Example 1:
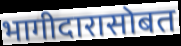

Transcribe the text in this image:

भागीदारासोबत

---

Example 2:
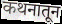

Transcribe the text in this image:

कथनातून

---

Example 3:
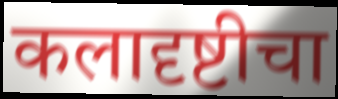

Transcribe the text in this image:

कलादृष्टीचा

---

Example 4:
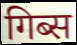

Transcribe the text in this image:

गिब्स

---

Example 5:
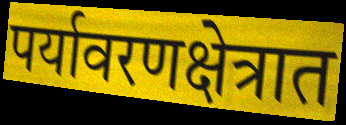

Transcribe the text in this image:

पर्यावरणक्षेत्रात